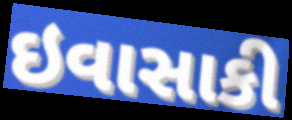
ઇવાસાકી